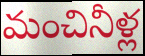
మంచినీళ్ల